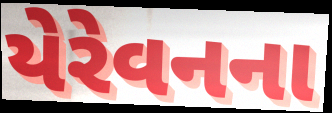
યેરેવનના